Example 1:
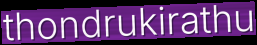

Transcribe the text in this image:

thondrukirathu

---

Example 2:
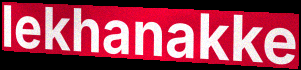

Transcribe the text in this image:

lekhanakke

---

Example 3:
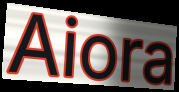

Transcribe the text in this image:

Aiora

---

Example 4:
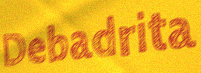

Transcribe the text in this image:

Debadrita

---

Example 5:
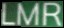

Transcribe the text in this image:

LMR